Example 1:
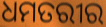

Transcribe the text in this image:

ଧମତରୀର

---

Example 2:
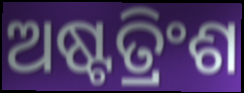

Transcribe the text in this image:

ଅଷ୍ଟତ୍ରିଂଶ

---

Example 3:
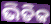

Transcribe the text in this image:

ଭିତିକ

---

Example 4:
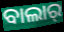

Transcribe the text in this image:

ବାଲାର୍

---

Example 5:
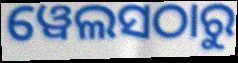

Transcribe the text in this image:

ୱେଲସଠାରୁ